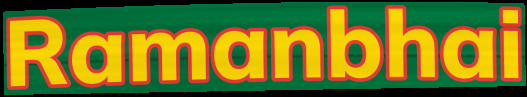
Ramanbhai